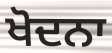
ਖੋਦਨਾ